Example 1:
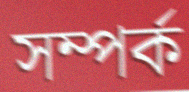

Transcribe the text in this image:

সম্পৰ্ক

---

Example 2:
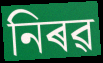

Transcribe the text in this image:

নিৰৱ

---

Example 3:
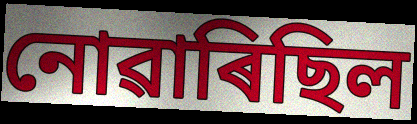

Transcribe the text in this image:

নোৱাৰিছিল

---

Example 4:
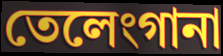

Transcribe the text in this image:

তেলেংগানা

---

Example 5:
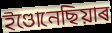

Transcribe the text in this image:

ইণ্ডোনেছিয়াৰ